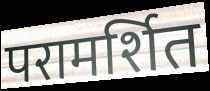
परामर्शित